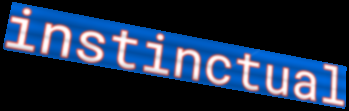
instinctual